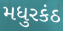
મધુરકંઠ